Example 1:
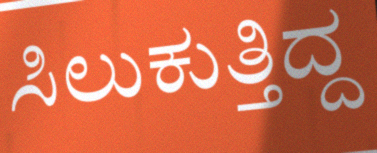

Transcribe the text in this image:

ಸಿಲುಕುತ್ತಿದ್ದ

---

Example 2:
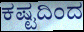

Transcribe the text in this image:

ಕಷ್ಟದಿಂದ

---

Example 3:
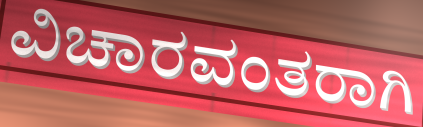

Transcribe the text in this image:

ವಿಚಾರವಂತರಾಗಿ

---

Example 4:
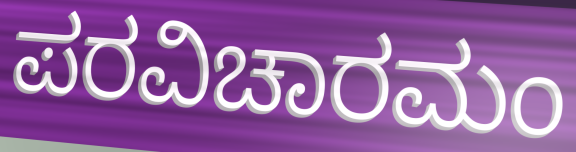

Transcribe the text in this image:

ಪರವಿಚಾರಮಂ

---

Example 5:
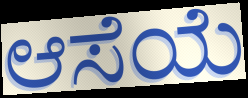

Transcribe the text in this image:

ಆಸೆಯೆ